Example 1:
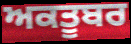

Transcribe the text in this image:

ਅਕਤੂਬਰ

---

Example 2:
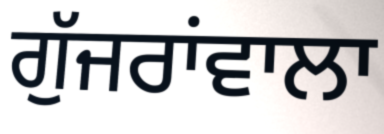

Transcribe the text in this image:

ਗੁੱਜਰਾਂਵਾਲਾ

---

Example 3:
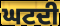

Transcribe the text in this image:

ਘਟਦੀ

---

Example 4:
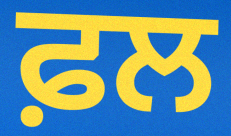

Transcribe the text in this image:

ਫ਼ਲ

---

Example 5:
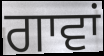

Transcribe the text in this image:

ਗਾਵਾਂ